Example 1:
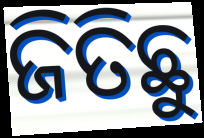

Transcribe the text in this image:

ଜିତିଛୁ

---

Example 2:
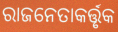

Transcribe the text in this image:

ରାଜନେତାକର୍ତ୍ତୃକ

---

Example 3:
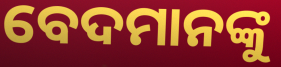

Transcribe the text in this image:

ବେଦମାନଙ୍କୁ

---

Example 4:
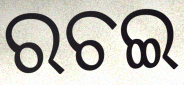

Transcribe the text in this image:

ରଚଇ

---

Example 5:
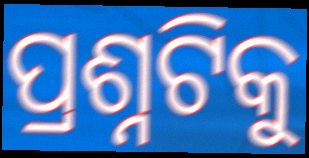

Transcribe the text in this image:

ପ୍ରଶ୍ନଟିକୁ